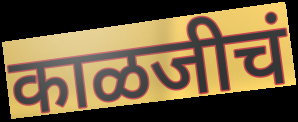
काळजीचं